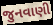
જુનવાણી